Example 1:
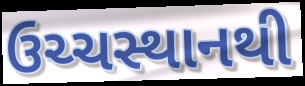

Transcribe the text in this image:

ઉચ્ચસ્થાનથી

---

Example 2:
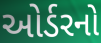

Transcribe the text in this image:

ઓર્ડરનો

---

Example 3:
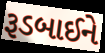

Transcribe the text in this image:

રૂડબાઈને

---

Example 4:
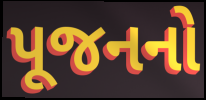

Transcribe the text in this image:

પૂજનનો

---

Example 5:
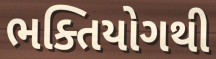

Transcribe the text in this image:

ભક્તિયોગથી